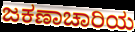
ಜಕಣಾಚಾರಿಯ